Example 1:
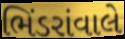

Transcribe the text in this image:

ભિંડરાંવાલે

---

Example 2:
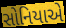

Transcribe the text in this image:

સોનિયાએ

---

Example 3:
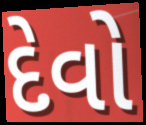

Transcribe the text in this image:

દેવો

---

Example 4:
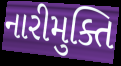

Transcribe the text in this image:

નારીમુક્તિ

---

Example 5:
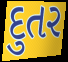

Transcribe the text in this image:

દુતર